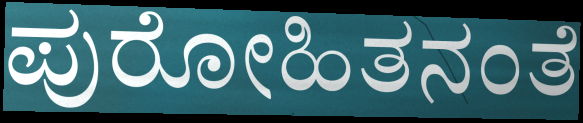
ಪುರೋಹಿತನಂತೆ